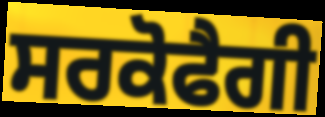
ਸਰਕੋਫੈਗੀ